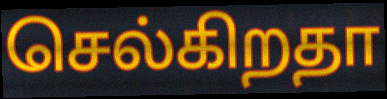
செல்கிறதா